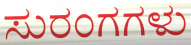
ಸುರಂಗಗಳು